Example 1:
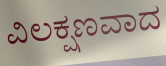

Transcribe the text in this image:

ವಿಲಕ್ಷಣವಾದ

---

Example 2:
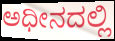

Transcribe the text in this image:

ಅಧೀನದಲ್ಲಿ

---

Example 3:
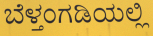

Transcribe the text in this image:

ಬೆಳ್ತಂಗಡಿಯಲ್ಲಿ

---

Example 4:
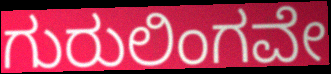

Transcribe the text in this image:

ಗುರುಲಿಂಗವೇ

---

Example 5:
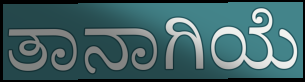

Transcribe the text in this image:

ತಾನಾಗಿಯೆ